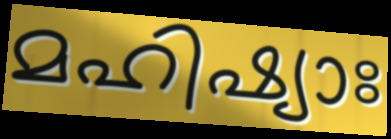
മഹിഷ്യാഃ